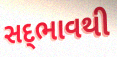
સદ્‍ભાવથી